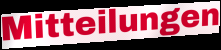
Mitteilungen